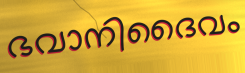
ഭവാനിദൈവം